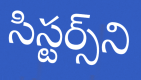
సిస్టర్స్‌ని